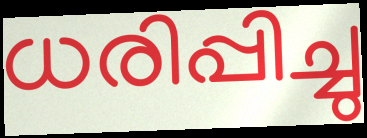
ധരിപ്പിച്ചു